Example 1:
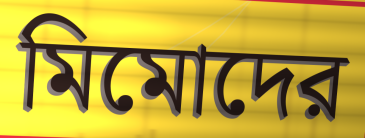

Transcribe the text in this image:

মিমোদের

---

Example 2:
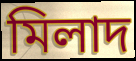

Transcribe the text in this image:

মিলাদ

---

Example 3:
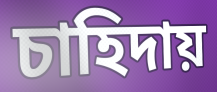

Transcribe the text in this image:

চাহিদায়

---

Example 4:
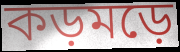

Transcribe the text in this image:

কড়মড়ে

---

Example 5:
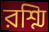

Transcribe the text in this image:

রশ্মি